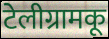
टेलीग्रामकू